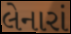
લેનારાં